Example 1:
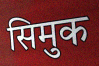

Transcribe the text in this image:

सिमुक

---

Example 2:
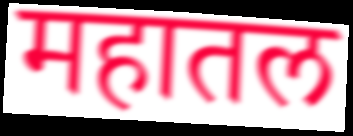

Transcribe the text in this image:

महातल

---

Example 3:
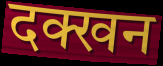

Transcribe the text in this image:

दक्खन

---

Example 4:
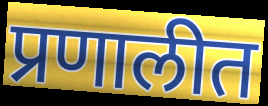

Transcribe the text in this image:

प्रणालीत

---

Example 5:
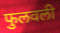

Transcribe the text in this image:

फुलवली